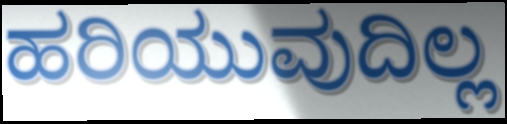
ಹರಿಯುವುದಿಲ್ಲ